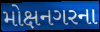
મોક્ષનગરના